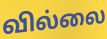
வில்லை